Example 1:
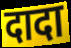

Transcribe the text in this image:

दादा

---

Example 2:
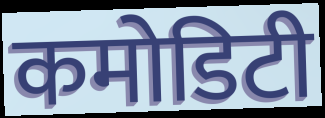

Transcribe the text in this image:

कमोडिटी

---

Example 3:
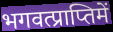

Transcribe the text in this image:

भगवत्प्राप्तिमें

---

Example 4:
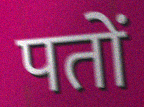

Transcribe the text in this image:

पतों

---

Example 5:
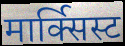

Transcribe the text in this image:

मार्क्सिस्ट